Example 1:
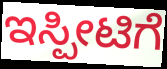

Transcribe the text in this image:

ಇಸ್ಪೀಟಿಗೆ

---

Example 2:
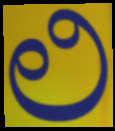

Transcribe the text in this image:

ಲಿ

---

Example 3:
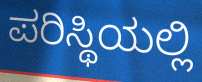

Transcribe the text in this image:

ಪರಿಸ್ಥಿಯಲ್ಲಿ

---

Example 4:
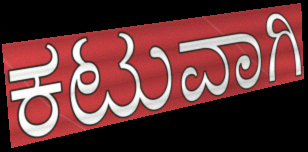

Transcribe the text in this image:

ಕಟುವಾಗಿ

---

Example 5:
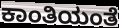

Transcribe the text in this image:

ಕಾಂತಿಯಂತೆ